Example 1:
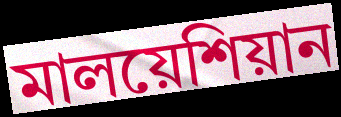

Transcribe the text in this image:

মালয়েশিয়ান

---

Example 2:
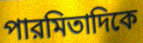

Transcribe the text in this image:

পারমিতাদিকে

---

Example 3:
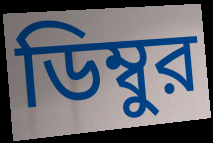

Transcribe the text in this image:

ডিম্বুর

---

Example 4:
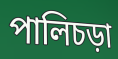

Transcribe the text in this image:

পালিচড়া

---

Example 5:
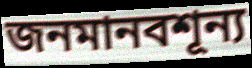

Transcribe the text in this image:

জনমানবশূন্য